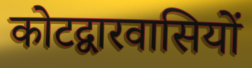
कोटद्वारवासियों